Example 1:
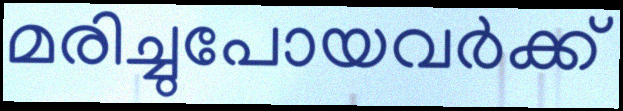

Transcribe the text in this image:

മരിച്ചുപോയവർക്ക്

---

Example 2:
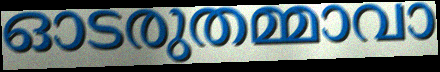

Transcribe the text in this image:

ഓടരുതമ്മാവാ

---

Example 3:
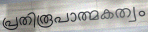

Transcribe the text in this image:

പ്രതിരൂപാത്മകത്വം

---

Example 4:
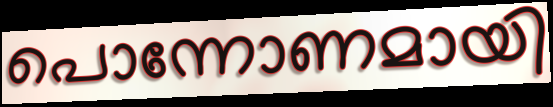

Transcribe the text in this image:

പൊന്നോണമായി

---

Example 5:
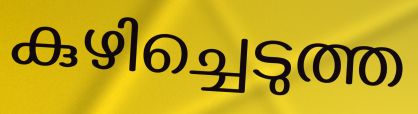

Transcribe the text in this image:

കുഴിച്ചെടുത്ത